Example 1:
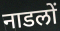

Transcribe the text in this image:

नाडलों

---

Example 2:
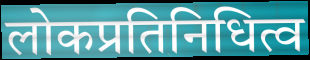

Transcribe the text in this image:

लोकप्रतिनिधित्व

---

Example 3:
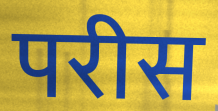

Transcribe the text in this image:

परीस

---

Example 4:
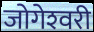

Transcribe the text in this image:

जोगेश्‍वरी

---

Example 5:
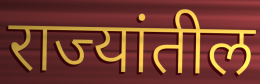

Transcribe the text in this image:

राज्यांतील